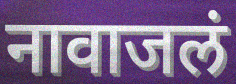
नावाजलं